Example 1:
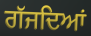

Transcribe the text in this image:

ਗੱਜਦਿਆਂ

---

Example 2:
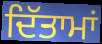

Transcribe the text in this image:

ਦਿੱਤਾਮਾਂ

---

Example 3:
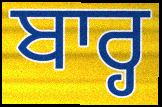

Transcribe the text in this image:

ਬਾਰ੍ਹ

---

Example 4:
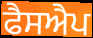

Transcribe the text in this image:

ਫੈਸਐਪ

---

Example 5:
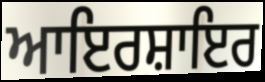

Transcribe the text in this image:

ਆਇਰਸ਼ਾਇਰ